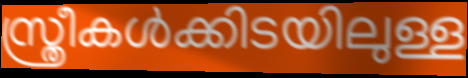
സ്ത്രീകൾക്കിടയിലുള്ള